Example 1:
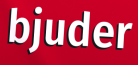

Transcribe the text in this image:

bjuder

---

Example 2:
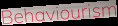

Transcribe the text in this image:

Behaviourism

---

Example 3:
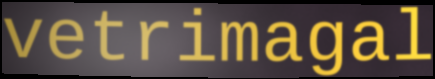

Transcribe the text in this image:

vetrimagal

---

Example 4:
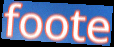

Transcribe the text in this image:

foote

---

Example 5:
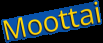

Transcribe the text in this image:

Moottai